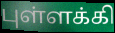
புள்ளக்கி